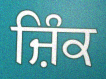
ਜ਼ਿੰਕ